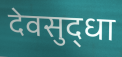
देवसुद्धा